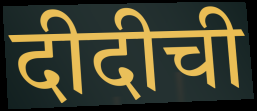
दीदीची